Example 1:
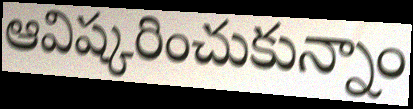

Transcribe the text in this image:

ఆవిష్కరించుకున్నాం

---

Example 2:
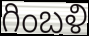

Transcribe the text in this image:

గింబళి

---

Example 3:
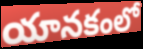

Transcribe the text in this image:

యానకంలో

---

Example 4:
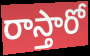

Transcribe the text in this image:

రాస్తారో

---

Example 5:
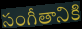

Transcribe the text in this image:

సంగీతానికి